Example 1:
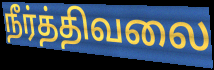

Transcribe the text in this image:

நீர்த்திவலை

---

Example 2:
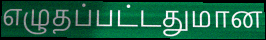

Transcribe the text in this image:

எழுதப்பட்டதுமான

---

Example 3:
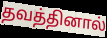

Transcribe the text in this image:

தவத்தினால்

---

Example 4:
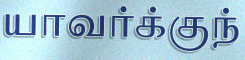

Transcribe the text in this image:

யாவர்க்குந்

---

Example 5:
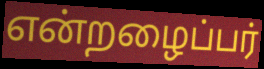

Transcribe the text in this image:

என்றழைப்பர்